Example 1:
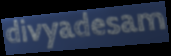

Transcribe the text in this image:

divyadesam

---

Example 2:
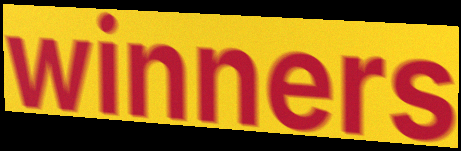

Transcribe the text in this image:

winners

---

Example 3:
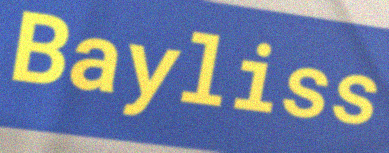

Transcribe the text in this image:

Bayliss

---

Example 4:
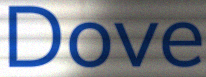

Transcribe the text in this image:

Dove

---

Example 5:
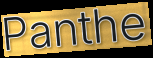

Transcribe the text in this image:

Panthe